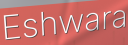
Eshwara